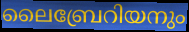
ലൈബ്രേറിയനും